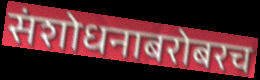
संशोधनाबरोबरच